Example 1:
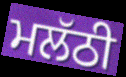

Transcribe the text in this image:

ਮਲੱਠੀ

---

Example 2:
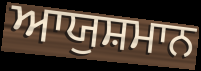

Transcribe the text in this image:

ਆਯੁਸ਼ਮਾਨ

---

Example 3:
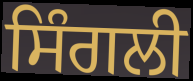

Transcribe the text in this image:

ਸਿੰਗਲੀ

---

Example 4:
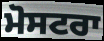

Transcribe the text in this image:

ਮੋਸਟਰਾ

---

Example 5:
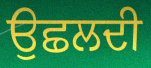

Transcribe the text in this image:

ਉਛਲਦੀ